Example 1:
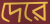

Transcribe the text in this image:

দেৱে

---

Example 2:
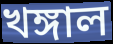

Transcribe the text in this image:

খঙ্গাল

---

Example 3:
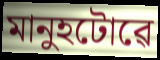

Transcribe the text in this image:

মানুহটোৱে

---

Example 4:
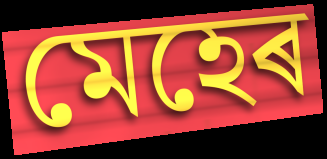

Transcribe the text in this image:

মেহেৰ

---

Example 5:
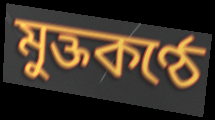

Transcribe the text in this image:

মুক্তকণ্ঠে